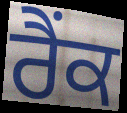
ਰੈੰਕ